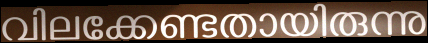
വിലക്കേണ്ടതായിരുന്നു